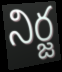
నిర్జ